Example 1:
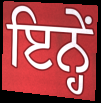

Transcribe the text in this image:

ਇਨ੍ਹੇਂ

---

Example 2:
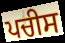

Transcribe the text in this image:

ਪਚੀਸ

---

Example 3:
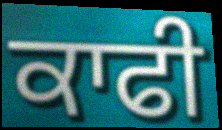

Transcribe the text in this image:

ਕਾਫੀ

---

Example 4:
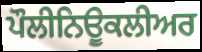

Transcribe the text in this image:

ਪੌਲੀਨਿਊਕਲੀਅਰ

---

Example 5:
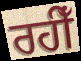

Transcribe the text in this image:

ਰਹੀਁ